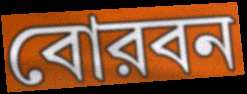
বোরবন